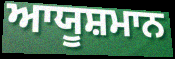
ਆਯੂਸ਼ਮਾਨ